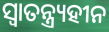
ସ୍ଵାତନ୍ତ୍ର୍ୟହୀନ